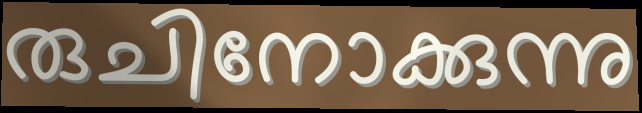
രുചിനോക്കുന്നു